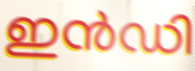
ഇൻഡി